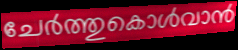
ചേർത്തുകൊൾവാൻ